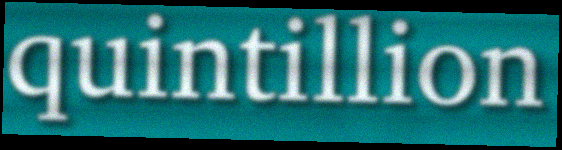
quintillion